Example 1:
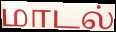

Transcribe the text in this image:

மாடல்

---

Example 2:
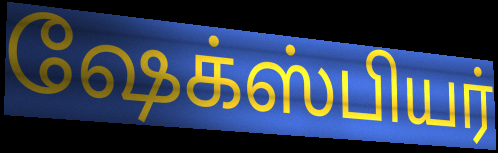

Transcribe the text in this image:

ஷேக்ஸ்பியர்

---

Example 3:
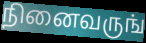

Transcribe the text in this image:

நினைவருங்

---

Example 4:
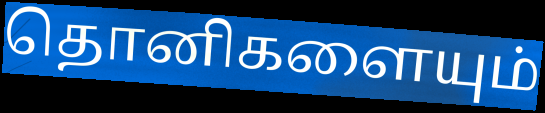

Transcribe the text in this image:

தொனிகளையும்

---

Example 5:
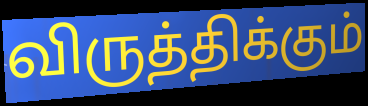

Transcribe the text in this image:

விருத்திக்கும்